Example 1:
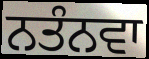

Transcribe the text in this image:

ਨਤੰਨਵਾ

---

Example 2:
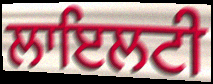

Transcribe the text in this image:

ਲਾਇਲਟੀ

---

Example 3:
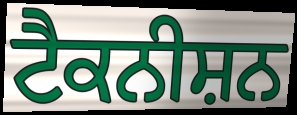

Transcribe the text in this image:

ਟੈਕਨੀਸ਼ਨ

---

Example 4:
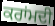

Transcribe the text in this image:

ਕਰਾਂਮਦੀ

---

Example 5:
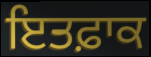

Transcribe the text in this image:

ਇਤਫ਼ਾਕ